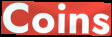
Coins